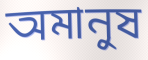
অমানুষ